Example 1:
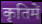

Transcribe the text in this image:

कृतिमें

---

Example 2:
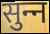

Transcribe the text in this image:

सुन्‍न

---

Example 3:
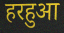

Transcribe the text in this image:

हरहुआ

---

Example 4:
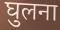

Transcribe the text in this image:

घुलना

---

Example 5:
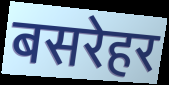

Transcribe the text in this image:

बसरेहर